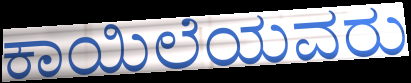
ಕಾಯಿಲೆಯವರು